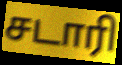
சடாரி